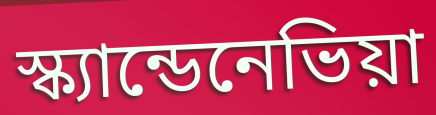
স্ক্যান্ডেনেভিয়া